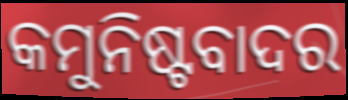
କମୁନିଷ୍ଟବାଦର